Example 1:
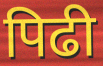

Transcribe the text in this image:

पिढी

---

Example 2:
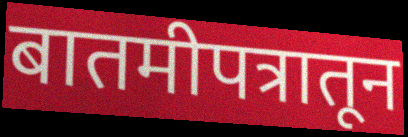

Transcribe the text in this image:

बातमीपत्रातून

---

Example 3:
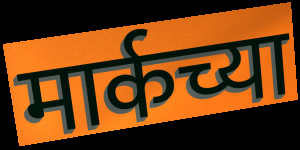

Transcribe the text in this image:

मार्कच्या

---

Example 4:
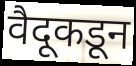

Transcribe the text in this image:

वैदूकडून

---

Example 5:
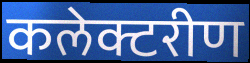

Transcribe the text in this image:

कलेक्टरीण